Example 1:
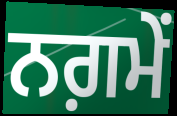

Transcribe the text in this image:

ਨਗ਼ਮੇਂ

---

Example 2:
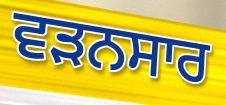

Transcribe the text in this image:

ਵੜਨਸਾਰ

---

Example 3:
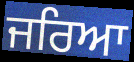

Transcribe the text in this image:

ਜਰਿਆ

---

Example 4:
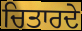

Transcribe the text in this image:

ਚਿਤਾਰਦੇ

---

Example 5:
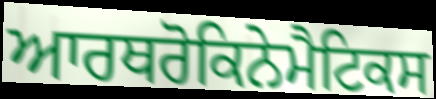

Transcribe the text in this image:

ਆਰਥਰੋਕਿਨੇਮੈਟਿਕਸ